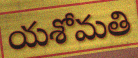
యశోమతి